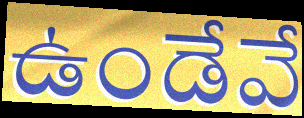
ఉండేవే